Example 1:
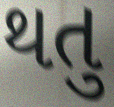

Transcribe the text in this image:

થતુ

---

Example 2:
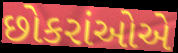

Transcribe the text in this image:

છોકરાંઓએ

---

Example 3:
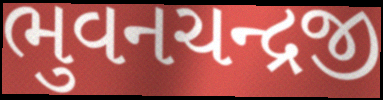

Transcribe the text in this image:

ભુવનચન્દ્રજી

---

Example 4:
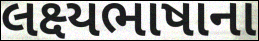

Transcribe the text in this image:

લક્ષ્યભાષાના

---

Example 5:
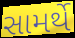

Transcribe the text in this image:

સામર્થે